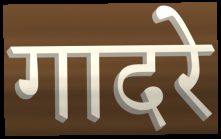
गादरे